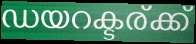
ഡയറക്ടര്ക്ക്